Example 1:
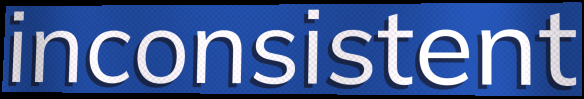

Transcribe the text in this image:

inconsistent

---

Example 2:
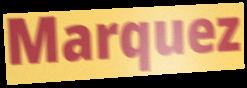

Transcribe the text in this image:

Marquez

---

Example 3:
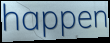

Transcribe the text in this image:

happen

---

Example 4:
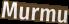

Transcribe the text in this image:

Murmu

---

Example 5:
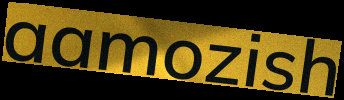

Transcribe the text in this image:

aamozish